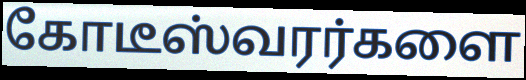
கோடீஸ்வரர்களை